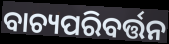
ବାଚ୍ୟପରିବର୍ତ୍ତନ